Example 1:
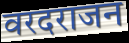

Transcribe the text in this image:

वरदराजन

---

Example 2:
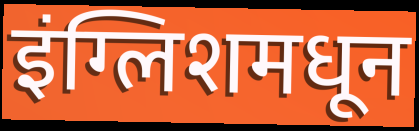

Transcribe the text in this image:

इंग्लिशमधून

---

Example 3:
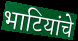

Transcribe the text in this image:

भाटियांचे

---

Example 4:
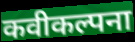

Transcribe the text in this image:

कवीकल्पना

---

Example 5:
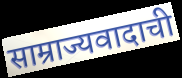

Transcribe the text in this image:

साम्राज्यवादाची